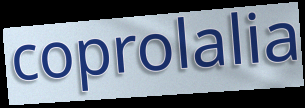
coprolalia